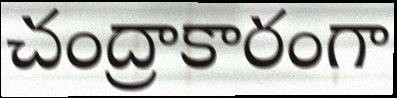
చంద్రాకారంగా